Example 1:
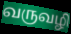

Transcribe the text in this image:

வருவழி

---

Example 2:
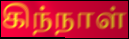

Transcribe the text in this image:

கிந்நாள்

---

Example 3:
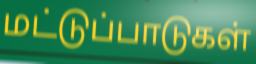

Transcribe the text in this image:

மட்டுப்பாடுகள்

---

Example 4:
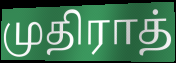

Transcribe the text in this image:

முதிராத்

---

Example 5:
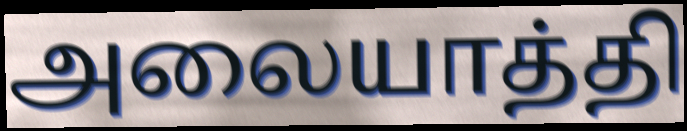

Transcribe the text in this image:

அலையாத்தி